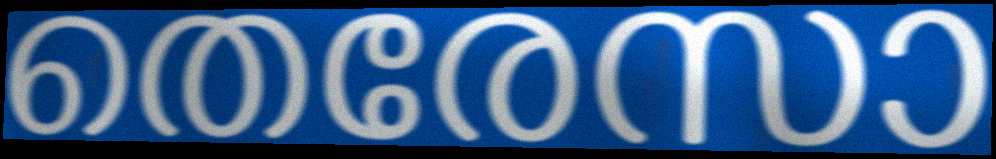
തെരേസാ